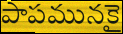
పాపమునకై